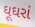
ઘૂઘરાં